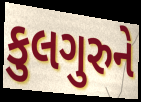
કુલગુરુને